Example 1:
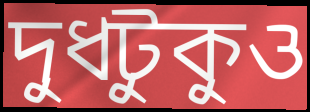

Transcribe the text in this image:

দুধটুকুও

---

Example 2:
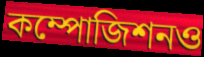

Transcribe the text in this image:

কম্পোজিশনও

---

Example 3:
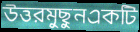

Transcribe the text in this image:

উত্তরমুছুনএকটি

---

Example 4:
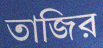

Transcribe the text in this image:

তাজির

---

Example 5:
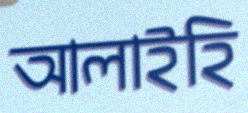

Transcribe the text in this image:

আলাইহি